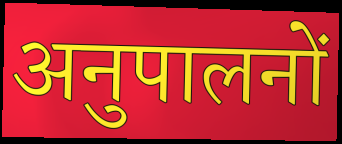
अनुपालनों